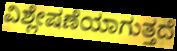
ವಿಶ್ಲೇಷಣೆಯಾಗುತ್ತದೆ